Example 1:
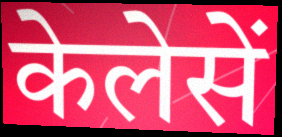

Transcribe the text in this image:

केलेसें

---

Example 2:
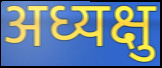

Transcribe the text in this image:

अध्यक्षु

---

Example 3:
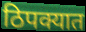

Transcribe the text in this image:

ठिपक्यात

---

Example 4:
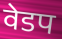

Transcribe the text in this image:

वेडप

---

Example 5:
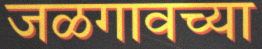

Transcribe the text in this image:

जळगावच्या